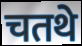
चतथे